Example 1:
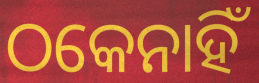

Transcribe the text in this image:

ଠକେନାହିଁ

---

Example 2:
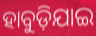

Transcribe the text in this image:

ହାବୁଡ଼ିଯାଇ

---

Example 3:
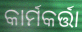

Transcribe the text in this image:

କାର୍ମକର୍ତ୍ତା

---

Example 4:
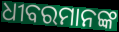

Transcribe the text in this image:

ଧୀବରମାନଙ୍କ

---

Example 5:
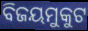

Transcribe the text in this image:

ବିଜୟମୁକୁଟ